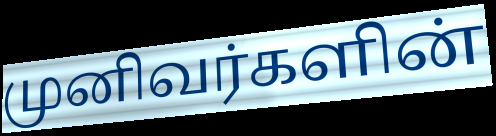
முனிவர்களின்